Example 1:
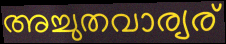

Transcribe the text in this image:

അച്ചുതവാര്യര്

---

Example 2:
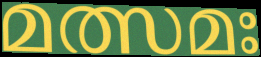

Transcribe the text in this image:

മത്സമഃ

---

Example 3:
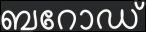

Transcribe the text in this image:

ബറോഡ്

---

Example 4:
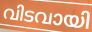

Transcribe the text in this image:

വിടവായി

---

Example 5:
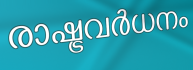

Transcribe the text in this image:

രാഷ്ട്രവർധനം